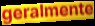
geralmente